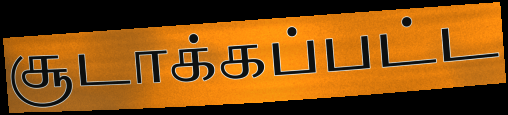
சூடாக்கப்பட்ட